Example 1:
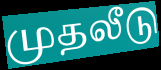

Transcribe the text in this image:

முதலீடு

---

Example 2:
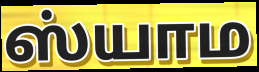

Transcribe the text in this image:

ஸ்யாம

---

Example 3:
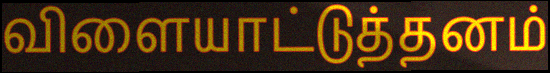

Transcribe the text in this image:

விளையாட்டுத்தனம்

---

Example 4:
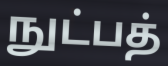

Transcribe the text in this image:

நுட்பத்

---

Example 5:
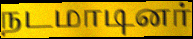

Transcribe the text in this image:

நடமாடினர்